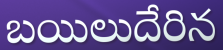
బయిలుదేరిన